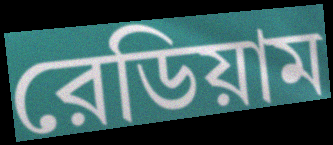
রেডিয়াম